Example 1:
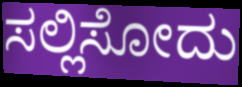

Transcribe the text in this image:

ಸಲ್ಲಿಸೋದು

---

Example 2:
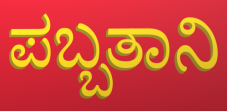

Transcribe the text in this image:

ಪಬ್ಬತಾನಿ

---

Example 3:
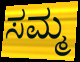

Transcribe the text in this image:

ಸಮ್ಮ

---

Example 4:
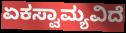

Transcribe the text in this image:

ಏಕಸ್ವಾಮ್ಯವಿದೆ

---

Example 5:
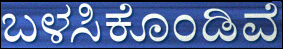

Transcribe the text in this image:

ಬಳಸಿಕೊಂಡಿವೆ